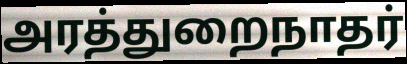
அரத்துறைநாதர்